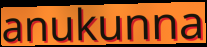
anukunna